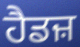
ਹੈਡਜ਼